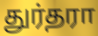
துர்தரா